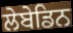
ਲੇਬੇਡਿਨ